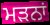
ਮੜਨਾਂ